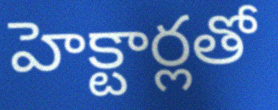
హెక్టార్లతో